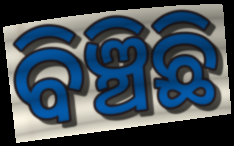
ବିଞ୍ଚିଛି